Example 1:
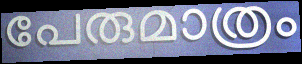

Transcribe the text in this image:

പേരുമാത്രം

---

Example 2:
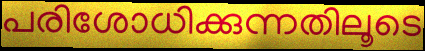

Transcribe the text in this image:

പരിശോധിക്കുന്നതിലൂടെ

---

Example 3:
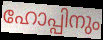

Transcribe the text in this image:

ഹോപ്പിനും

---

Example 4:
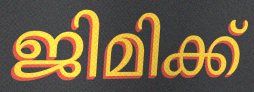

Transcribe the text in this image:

ജിമിക്ക്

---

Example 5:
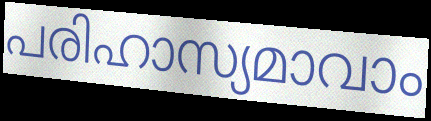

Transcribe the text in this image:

പരിഹാസ്യമാവാം